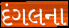
દંગલના